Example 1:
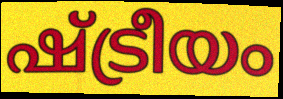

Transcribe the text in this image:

ഷ്ട്രീയം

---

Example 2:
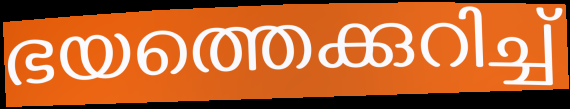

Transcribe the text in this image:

ഭയത്തെക്കുറിച്ച്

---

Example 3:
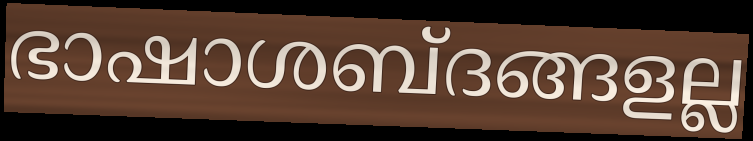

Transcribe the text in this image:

ഭാഷാശബ്ദങ്ങളല്ല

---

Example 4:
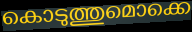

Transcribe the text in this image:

കൊടുത്തുമൊക്കെ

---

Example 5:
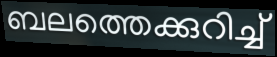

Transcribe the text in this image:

ബലത്തെക്കുറിച്ച്